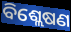
ବିଶ୍ଲେଷଣ